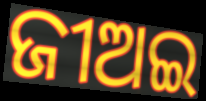
ଜୀଅଇ